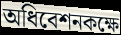
অধিবেশনকক্ষে